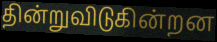
தின்றுவிடுகின்றன